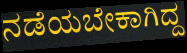
ನಡೆಯಬೇಕಾಗಿದ್ದ